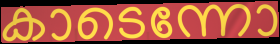
കാടെന്നോ